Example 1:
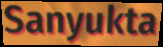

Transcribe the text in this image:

Sanyukta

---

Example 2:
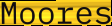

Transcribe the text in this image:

Moores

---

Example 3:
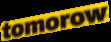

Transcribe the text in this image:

tomorow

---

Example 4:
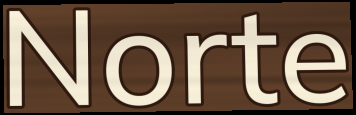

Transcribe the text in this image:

Norte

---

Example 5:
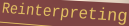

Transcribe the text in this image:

Reinterpreting